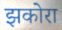
झकोरा